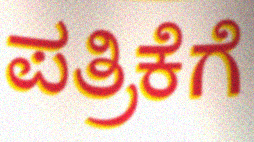
ಪತ್ರಿಕೆಗೆ